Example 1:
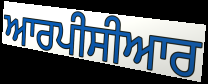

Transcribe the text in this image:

ਆਰਪੀਸੀਆਰ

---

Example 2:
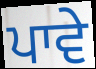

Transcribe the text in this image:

ਪਾਵੇ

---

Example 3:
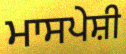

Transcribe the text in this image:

ਮਾਸਪੇਸ਼ੀ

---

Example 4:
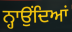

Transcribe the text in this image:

ਨ੍ਹਾਉਂਦਿਆਂ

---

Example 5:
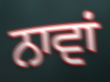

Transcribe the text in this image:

ਨਾਵਾਂ